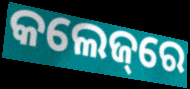
କଲେଜ୍‌ରେ